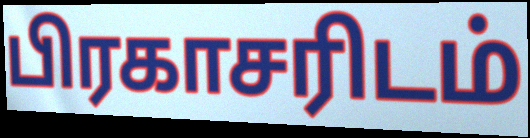
பிரகாசரிடம்